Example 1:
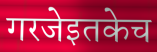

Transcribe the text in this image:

गरजेइतकेच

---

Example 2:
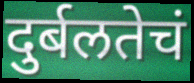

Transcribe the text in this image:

दुर्बलतेचं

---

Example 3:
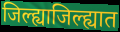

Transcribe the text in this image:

जिल्ह्याजिल्ह्यात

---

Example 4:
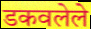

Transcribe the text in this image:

डकवलेले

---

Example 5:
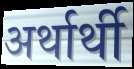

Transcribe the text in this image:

अर्थार्थी